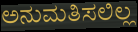
ಅನುಮತಿಸಲಿಲ್ಲ